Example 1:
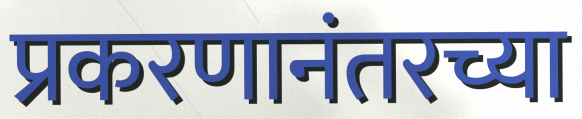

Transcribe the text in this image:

प्रकरणानंतरच्या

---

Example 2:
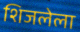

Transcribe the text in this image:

शिजलेला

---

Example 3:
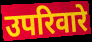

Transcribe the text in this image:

उपरिवारे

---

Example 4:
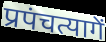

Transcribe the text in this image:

प्रपंचत्यागें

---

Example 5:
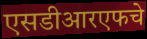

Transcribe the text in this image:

एसडीआरएफचे